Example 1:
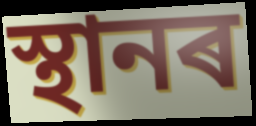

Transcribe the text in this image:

স্থানৰ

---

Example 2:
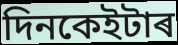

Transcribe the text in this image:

দিনকেইটাৰ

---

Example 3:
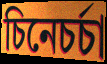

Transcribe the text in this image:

চিনেচৰ্চা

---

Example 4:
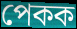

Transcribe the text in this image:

পেকক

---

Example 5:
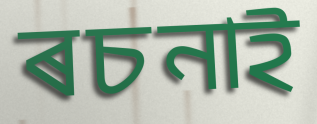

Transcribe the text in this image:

ৰচনাই